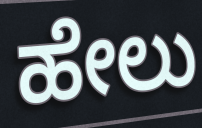
ಹೇಲು